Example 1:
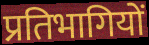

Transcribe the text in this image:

प्रतिभागियों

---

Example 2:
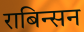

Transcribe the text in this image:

राबिन्सन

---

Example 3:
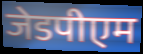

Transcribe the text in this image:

जेडपीएम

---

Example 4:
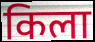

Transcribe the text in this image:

किला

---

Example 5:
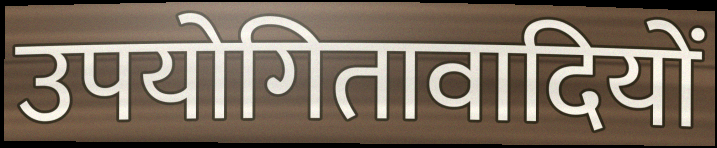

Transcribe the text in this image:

उपयोगितावादियों